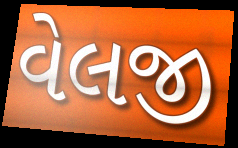
વેલજી